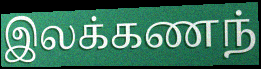
இலக்கணந்